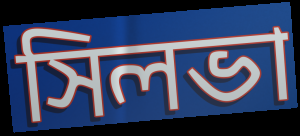
সিলভা